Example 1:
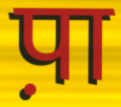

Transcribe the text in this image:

प़ा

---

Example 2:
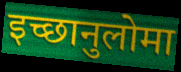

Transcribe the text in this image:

इच्छानुलोमा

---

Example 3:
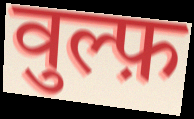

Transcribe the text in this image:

वुल्फ़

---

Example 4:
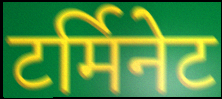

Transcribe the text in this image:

टर्मिनेट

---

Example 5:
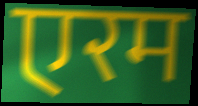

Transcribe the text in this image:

एरम